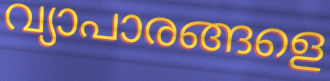
വ്യാപാരങ്ങളെ